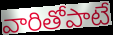
వారితోపాటే